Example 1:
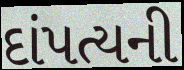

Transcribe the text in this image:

દાંપત્યની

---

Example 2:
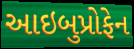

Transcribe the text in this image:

આઇબુપ્રોફેન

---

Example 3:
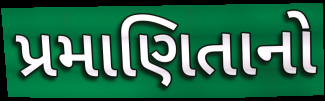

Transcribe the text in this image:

પ્રમાણિતાનો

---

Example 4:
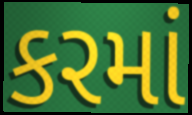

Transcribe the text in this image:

કરમાં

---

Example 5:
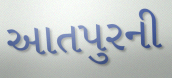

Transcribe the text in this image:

આતપુરની